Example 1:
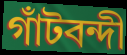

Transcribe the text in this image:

গাঁটবন্দী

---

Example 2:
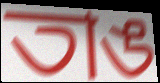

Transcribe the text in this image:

তাঙ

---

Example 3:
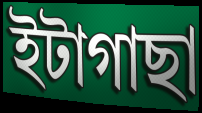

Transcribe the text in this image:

ইটাগাছা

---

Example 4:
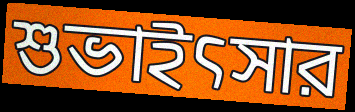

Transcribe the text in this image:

শুভাইৎসার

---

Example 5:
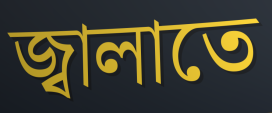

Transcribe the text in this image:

জ্বালাতে